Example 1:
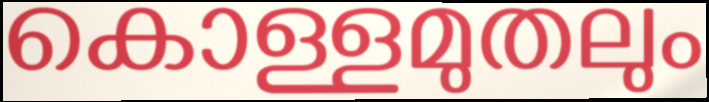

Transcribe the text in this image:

കൊള്ളമുതലും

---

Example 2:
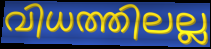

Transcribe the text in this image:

വിധത്തിലല്ല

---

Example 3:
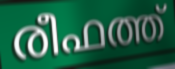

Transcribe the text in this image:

രീഫത്ത്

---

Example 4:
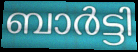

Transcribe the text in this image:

ബാർട്ടി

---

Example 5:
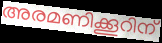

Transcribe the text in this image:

അരമണിക്കൂറിന്